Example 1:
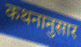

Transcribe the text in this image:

कथनानुसार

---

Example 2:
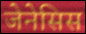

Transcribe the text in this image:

जेनेसिस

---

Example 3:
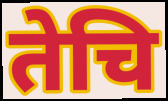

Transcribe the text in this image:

तेचि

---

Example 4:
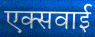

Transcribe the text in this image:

एक्सवाई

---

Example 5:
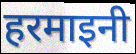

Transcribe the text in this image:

हरमाइनी